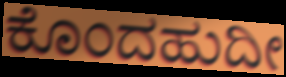
ಕೊಂದಹುದೀ